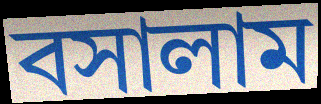
বসালাম